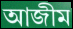
আজীম